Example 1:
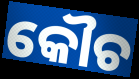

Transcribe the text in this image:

କୌଚ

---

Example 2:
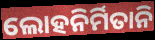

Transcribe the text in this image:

ଲୋହନିର୍ମିତାନି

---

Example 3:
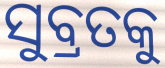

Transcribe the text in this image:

ସୁବ୍ରତକୁ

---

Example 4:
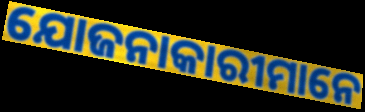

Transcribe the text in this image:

ଯୋଜନାକାରୀମାନେ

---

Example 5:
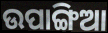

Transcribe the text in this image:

ଉପାଙ୍ଗିଆ